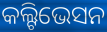
କଲ୍ଟିଭେସନ